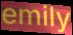
emily